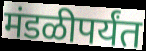
मंडळीपर्यंत